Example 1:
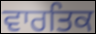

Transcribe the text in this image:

ਵਾਰਤਿਕ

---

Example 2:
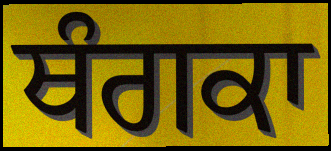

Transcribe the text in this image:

ਥੰਗਕਾ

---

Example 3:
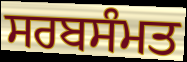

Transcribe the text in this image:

ਸਰਬਸੰਮਤ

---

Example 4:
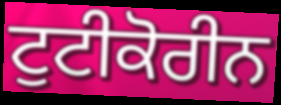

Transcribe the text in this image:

ਟੁਟੀਕੋਰੀਨ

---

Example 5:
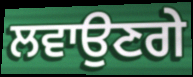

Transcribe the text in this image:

ਲਵਾਉਣਗੇ